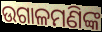
ଉଗାଳମଣିଙ୍କ